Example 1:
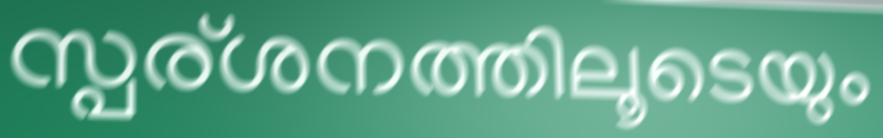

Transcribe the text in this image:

സ്പര്ശനത്തിലൂടെയും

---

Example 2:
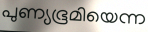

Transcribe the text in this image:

പുണ്യഭൂമിയെന്ന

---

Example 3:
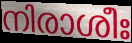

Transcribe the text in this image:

നിരാശീഃ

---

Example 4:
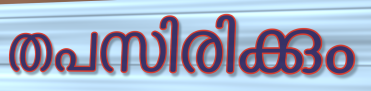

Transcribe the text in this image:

തപസിരിക്കും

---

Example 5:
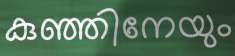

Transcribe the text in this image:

കുഞ്ഞിനേയും